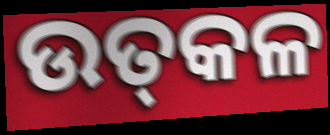
ଉତ୍‌କଳ